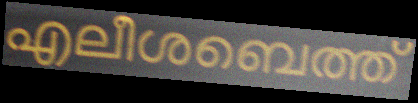
എലീശബെത്ത്